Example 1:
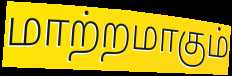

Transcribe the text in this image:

மாற்றமாகும்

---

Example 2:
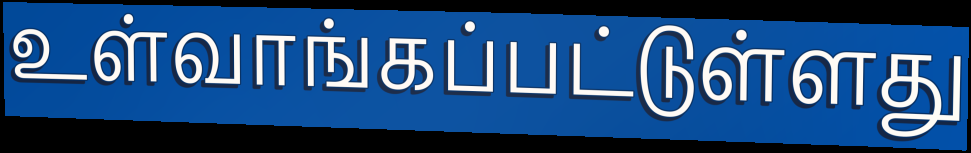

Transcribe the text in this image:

உள்வாங்கப்பட்டுள்ளது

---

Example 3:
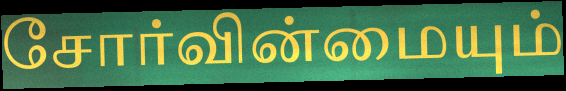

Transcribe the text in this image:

சோர்வின்மையும்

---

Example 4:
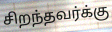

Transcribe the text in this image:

சிறந்தவர்க்கு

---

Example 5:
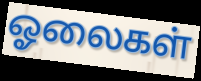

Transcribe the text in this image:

ஓலைகள்